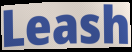
Leash